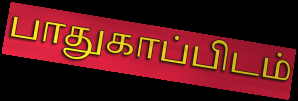
பாதுகாப்பிடம்